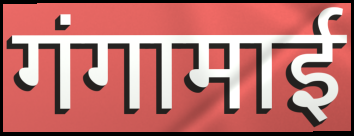
गंगामाई